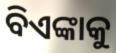
ବିଏଙ୍କାକୁ